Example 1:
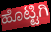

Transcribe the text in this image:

ಹೊಟ್ಟಿಗಿ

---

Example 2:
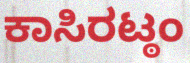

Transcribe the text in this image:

ಕಾಸಿರಟ್ಠಂ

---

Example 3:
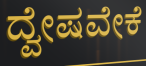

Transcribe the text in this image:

ದ್ವೇಷವೇಕೆ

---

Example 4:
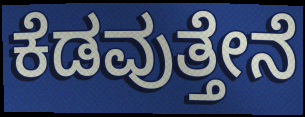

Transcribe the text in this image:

ಕೆಡವುತ್ತೇನೆ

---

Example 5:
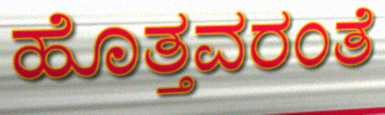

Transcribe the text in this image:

ಹೊತ್ತವರಂತೆ